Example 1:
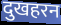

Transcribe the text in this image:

दुखहरन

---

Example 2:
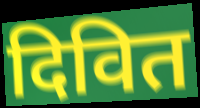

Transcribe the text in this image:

दिवित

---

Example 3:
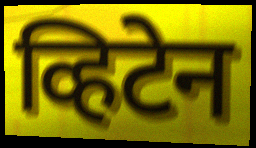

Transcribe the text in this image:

व्हिटेन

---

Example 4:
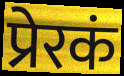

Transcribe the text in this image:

प्रेरकं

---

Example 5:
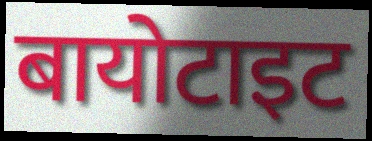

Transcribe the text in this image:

बायोटाइट